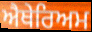
ਐਥੇਰਿਅਮ